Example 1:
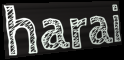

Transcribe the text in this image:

harai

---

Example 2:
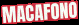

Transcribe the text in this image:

MACAFONO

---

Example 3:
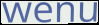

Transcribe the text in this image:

wenu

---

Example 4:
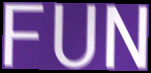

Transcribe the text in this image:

FUN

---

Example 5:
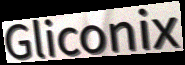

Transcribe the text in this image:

Gliconix